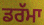
ਡਰੱਮਾ